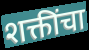
शक्तींचा